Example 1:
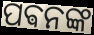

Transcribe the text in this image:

ପଵନଙ୍କ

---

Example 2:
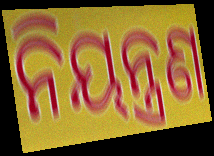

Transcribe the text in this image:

ନିୟନ୍ତ୍ରଣ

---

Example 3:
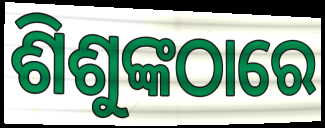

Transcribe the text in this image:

ଶିଶୁଙ୍କଠାରେ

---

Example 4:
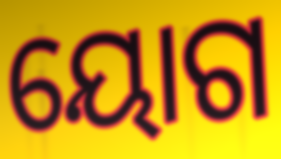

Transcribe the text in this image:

ୟୋଗ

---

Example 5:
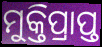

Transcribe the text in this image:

ମୁକ୍ତିପ୍ରାପ୍ତ